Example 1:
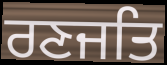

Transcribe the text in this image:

ਰਣਜਤਿ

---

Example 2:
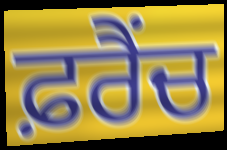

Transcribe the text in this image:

ਫ਼ਰੈਂਚ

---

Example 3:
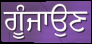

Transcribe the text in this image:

ਗੂੰਜਾਉਣ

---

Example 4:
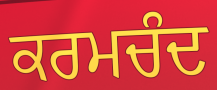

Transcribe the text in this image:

ਕਰਮਚੰਦ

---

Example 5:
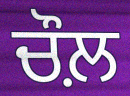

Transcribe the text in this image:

ਚੌਲ਼